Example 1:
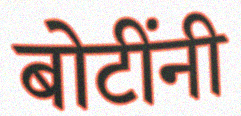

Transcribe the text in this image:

बोटींनी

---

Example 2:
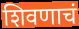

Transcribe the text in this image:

शिवणाचं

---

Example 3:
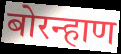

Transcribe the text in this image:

बोरन्हाण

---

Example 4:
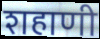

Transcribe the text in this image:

शहाणी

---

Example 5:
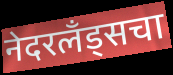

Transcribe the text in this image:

नेदरलँड्सचा